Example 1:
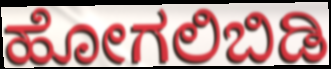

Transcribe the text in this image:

ಹೋಗಲಿಬಿಡಿ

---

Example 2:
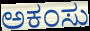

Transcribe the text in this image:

ಅಕಂಸು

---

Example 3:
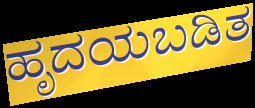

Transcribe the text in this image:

ಹೃದಯಬಡಿತ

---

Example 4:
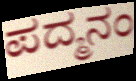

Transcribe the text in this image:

ಪದ್ಮನಂ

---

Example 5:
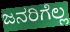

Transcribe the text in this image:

ಜನರಿಗೆಲ್ಲ